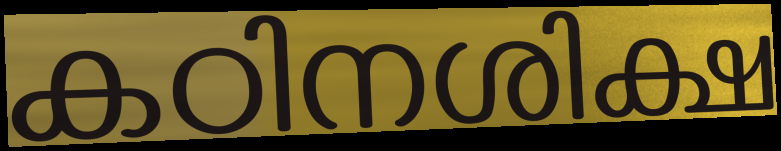
കഠിനശിക്ഷ